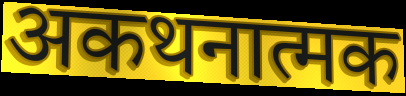
अकथनात्मक